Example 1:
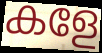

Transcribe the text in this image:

കളേ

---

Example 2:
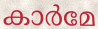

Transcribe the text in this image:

കാർമേ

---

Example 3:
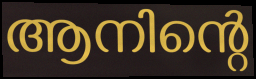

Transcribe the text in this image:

ആനിന്റെ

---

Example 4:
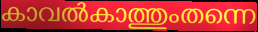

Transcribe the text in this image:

കാവൽകാത്തുംതന്നെ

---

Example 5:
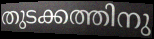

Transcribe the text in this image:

തുടക്കത്തിനു